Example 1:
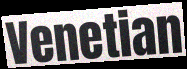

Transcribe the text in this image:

Venetian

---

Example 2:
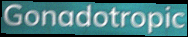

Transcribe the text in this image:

Gonadotropic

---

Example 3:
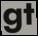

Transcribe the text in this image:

gt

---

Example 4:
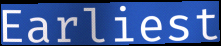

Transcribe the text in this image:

Earliest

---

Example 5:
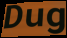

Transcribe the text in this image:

Dug